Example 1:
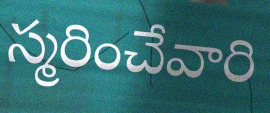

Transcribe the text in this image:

స్మరించేవారి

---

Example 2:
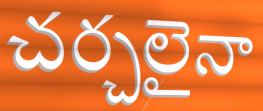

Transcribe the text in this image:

చర్చలైనా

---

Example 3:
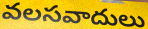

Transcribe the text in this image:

వలసవాదులు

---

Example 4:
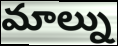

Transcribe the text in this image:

మాల్ను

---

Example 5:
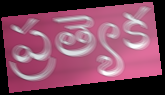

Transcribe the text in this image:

ప్రత్యెక